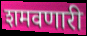
शमवणारी